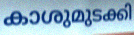
കാശുമുടക്കി